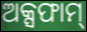
ଅକ୍ସଫାମ୍